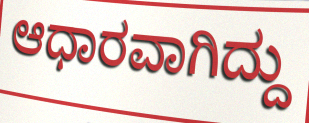
ಆಧಾರವಾಗಿದ್ದು